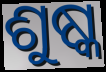
ଶୁଷ୍କ